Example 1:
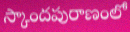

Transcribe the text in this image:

స్కాందపురాణంలో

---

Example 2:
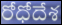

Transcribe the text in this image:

రోధోదేశ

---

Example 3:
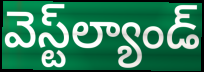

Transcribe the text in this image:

వెస్ట్‌ల్యాండ్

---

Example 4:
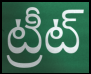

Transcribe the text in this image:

ట్రీట్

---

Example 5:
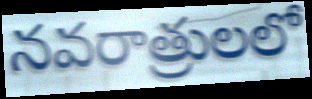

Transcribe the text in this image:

నవరాత్రులలో